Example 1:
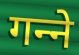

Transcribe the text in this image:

गन्‍ने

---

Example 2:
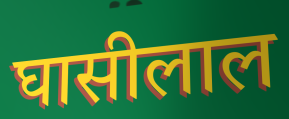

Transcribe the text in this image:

घासीलाल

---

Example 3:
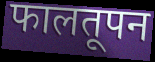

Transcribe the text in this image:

फालतूपन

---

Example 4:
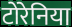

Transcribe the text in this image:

टोरेनिया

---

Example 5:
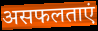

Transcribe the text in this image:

असफलताएं